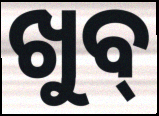
ଖୁବ୍